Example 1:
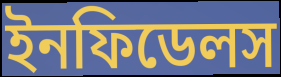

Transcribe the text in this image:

ইনফিডেলস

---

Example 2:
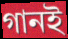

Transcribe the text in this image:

গানই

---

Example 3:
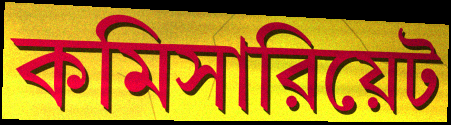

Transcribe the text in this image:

কমিসারিয়েট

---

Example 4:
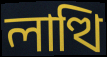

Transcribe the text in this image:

লাত্থি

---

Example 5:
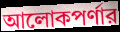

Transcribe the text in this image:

আলোকপর্ণার